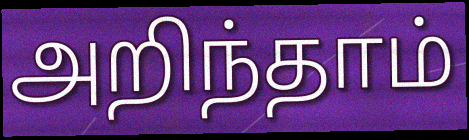
அறிந்தாம்